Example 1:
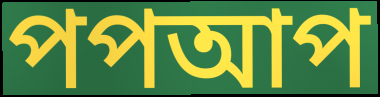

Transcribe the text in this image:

পপআপ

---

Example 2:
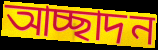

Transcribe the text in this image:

আচ্ছাদন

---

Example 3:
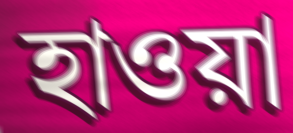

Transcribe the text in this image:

হাওয়া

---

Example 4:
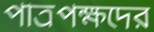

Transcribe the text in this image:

পাত্রপক্ষদের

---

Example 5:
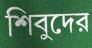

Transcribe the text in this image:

শিবুদের